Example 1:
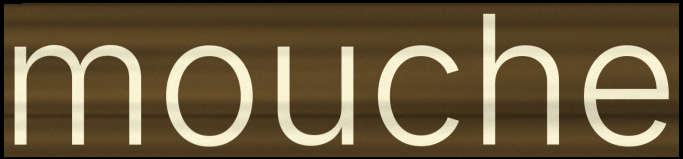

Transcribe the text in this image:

mouche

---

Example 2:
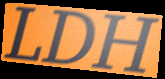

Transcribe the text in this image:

LDH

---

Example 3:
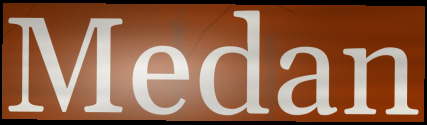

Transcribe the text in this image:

Medan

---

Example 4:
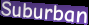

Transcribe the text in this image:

Suburban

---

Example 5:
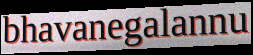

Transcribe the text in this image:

bhavanegalannu